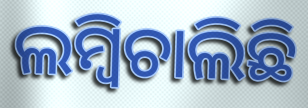
ଲମ୍ବିଚାଲିଛି